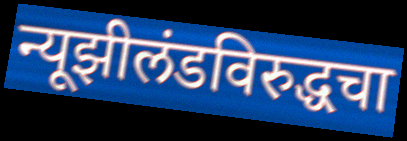
न्यूझीलंडविरुद्धचा